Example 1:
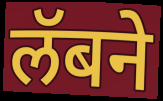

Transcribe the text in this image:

लॅबने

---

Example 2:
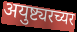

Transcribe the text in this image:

अयुष्ट्यरच्यर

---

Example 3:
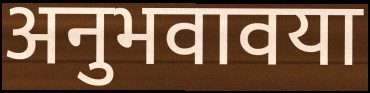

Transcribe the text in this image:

अनुभवावया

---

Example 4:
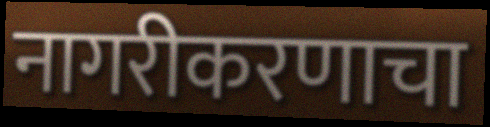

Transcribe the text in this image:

नागरीकरणाचा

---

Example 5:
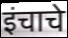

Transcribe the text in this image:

इंचाचे